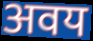
अवय